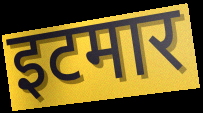
इटमार